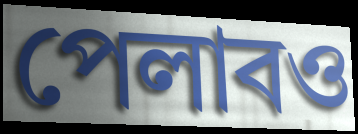
পেলাবও